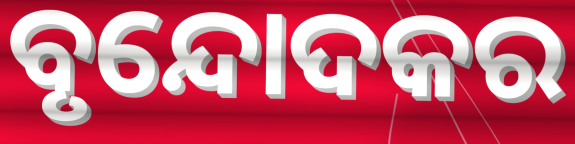
ବୃନ୍ଦୋଦକର